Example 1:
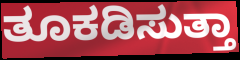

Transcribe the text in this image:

ತೂಕಡಿಸುತ್ತಾ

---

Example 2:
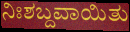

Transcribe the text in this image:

ನಿಃಶಬ್ದವಾಯಿತು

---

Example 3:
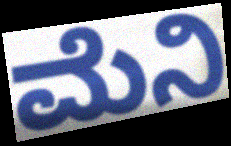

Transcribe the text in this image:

ಮೆನಿ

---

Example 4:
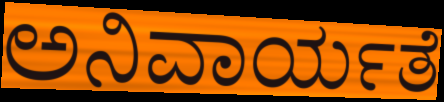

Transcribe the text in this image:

ಅನಿವಾರ್ಯತೆ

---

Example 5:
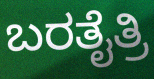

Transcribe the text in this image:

ಬರತೈತ್ರಿ